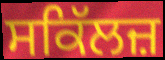
ਸਕਿੱਲਜ਼